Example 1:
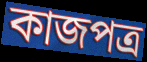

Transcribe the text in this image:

কাজপত্র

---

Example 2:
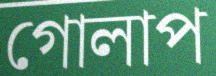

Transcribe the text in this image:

গোলাপ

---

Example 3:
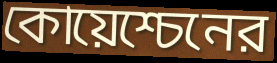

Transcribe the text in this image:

কোয়েশ্চেনের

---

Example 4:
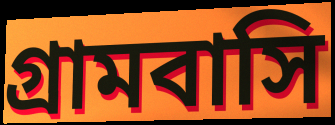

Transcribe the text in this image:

গ্রামবাসি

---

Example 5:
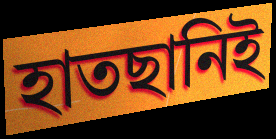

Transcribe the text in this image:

হাতছানিই